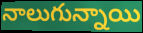
నాలుగున్నాయి